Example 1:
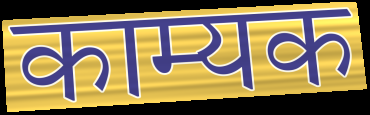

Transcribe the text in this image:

काम्यक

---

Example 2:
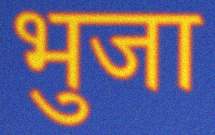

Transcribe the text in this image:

भुजा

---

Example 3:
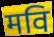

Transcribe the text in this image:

मवि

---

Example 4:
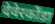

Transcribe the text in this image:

देवेरकोंडा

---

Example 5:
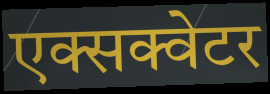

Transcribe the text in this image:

एक्सक्वेटर